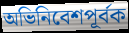
অভিনিবেশপূর্বক